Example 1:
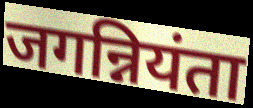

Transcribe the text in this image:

जगन्नियंता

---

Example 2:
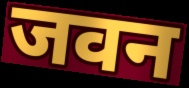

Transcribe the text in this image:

जवन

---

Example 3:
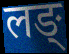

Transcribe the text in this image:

लङ्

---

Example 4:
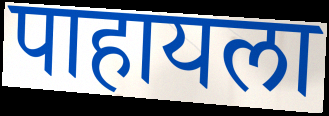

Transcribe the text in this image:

पाहायला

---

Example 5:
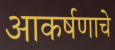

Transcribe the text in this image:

आकर्षणाचे